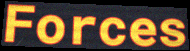
Forces